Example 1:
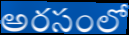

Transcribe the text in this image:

అరసంలో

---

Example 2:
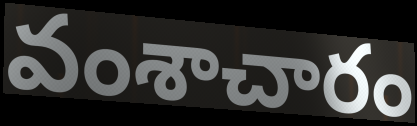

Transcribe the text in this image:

వంశాచారం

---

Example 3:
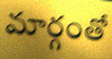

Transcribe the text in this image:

మార్గంతో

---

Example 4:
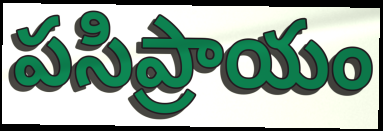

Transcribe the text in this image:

పసిప్రాయం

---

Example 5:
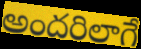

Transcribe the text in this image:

అందరిలాగే